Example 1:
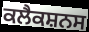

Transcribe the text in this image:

ਕਲੈਕਸ਼ਨਸ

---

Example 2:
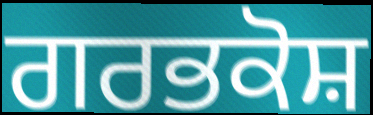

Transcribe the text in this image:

ਗਰਭਕੋਸ਼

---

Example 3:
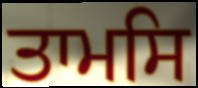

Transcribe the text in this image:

ਤਾਮਸਿ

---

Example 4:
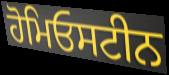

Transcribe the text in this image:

ਹੋਮਿਓਸਟੀਨ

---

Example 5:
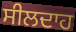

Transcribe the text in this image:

ਸੀਲਦਾਹ